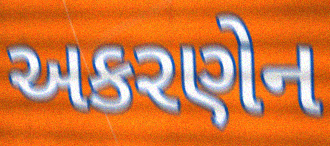
અકરણેન